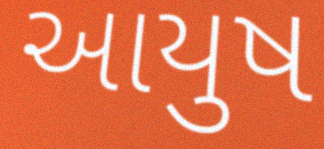
આયુષ